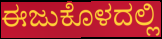
ಈಜುಕೊಳದಲ್ಲಿ